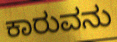
ಕಾರುವನು